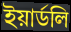
ইয়ার্ডলি